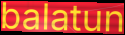
balatun